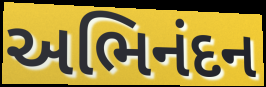
અભિનંદન